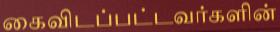
கைவிடப்பட்டவர்களின்